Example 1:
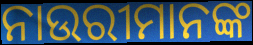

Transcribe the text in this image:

ନାଉରୀମାନଙ୍କ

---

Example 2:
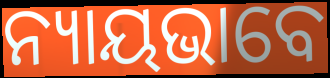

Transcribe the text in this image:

ନ୍ୟାୟଭାବେ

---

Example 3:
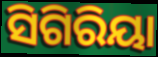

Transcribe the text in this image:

ସିଗିରିୟା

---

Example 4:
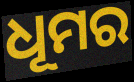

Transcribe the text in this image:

ଧୂମର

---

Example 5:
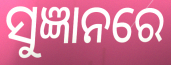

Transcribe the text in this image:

ସୁଜ୍ଞାନରେ